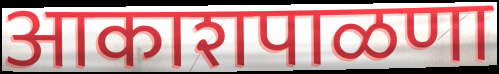
आकाशपाळणा